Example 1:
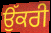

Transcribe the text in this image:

ਉੱਕਰੀ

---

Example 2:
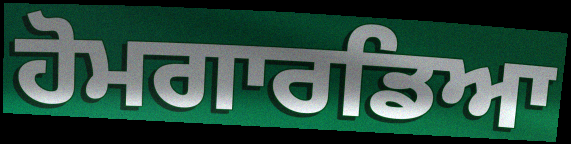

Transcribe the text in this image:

ਹੋਮਗਾਰਡਿਆ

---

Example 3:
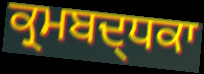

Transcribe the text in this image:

ਕ੍ਰਮਬਦ੍ਧਕਾ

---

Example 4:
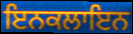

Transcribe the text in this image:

ਇਨਕਲਾਇਨ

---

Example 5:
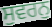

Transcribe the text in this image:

ਸੁਵਰਨੁ